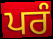
ਪਰੰ